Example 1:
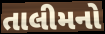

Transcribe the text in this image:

તાલીમનો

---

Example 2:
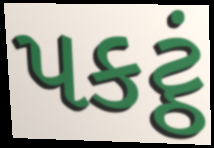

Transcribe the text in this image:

પકટ્ઠં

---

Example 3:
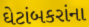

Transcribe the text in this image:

ઘેટાંબકરાંના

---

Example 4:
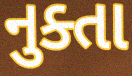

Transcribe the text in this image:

નુક્તા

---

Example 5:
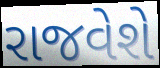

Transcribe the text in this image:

રાજવેશે